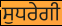
ਸੁਧਰੇਗੀ